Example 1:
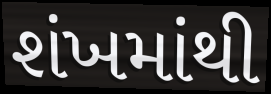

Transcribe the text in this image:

શંખમાંથી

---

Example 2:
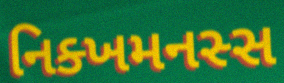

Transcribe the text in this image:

નિક્ખમનસ્સ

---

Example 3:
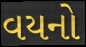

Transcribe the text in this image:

વયનો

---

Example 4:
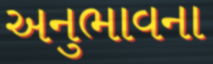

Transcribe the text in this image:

અનુભાવના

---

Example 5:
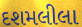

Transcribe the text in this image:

દશમલીલા